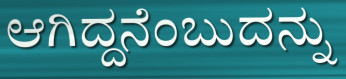
ಆಗಿದ್ದನೆಂಬುದನ್ನು